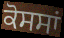
ਕੋਸਸਾਂ